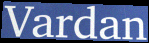
Vardan